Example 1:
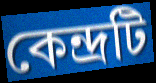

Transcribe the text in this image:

কেন্দ্রটি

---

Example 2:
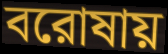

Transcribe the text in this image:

বরোষায়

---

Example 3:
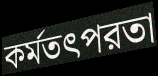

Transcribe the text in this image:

কর্মতৎপরতা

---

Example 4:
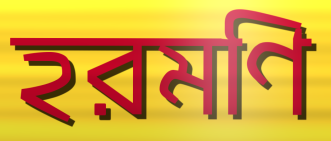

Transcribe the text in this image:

হরমণি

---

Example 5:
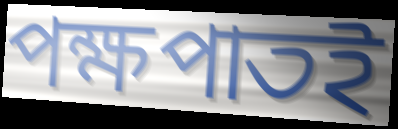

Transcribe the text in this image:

পক্ষপাতই